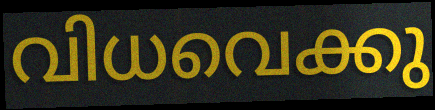
വിധവെക്കു